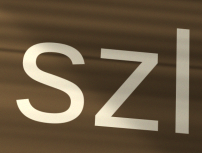
szl